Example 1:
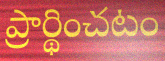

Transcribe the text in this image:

ప్రార్థించటం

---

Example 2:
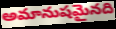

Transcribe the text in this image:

అమానుషమైనది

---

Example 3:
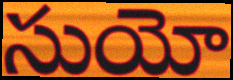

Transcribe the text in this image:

సుయో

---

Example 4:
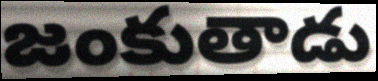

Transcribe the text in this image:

జంకుతాడు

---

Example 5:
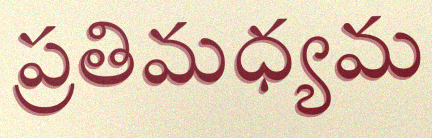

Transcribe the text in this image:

ప్రతిమధ్యమ